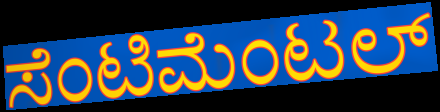
ಸೆಂಟಿಮೆಂಟಲ್